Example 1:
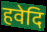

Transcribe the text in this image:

हवेदि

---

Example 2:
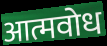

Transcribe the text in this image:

आत्मवोध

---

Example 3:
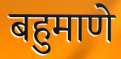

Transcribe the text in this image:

बहुमाणे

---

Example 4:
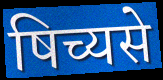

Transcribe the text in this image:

षिच्यसे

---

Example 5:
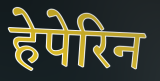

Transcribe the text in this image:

हेपेरिन